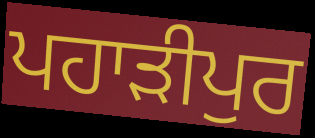
ਪਹਾੜੀਪੁਰ